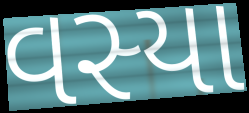
વસ્યા